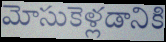
మోసుకెళ్లడానికి